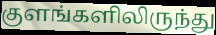
குளங்களிலிருந்து